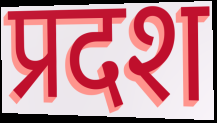
प्रदश